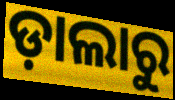
ଡ଼ାଲାରୁ